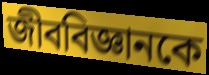
জীববিজ্ঞানকে